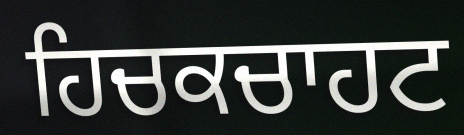
ਹਿਚਕਚਾਹਟ